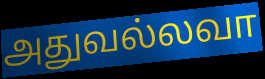
அதுவல்லவா